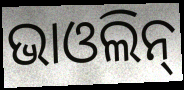
ଭାଓଲିନ୍